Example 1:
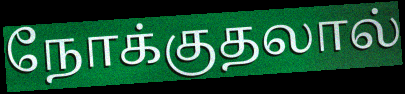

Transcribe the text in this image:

நோக்குதலால்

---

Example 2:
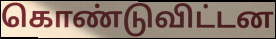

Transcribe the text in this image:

கொண்டுவிட்டன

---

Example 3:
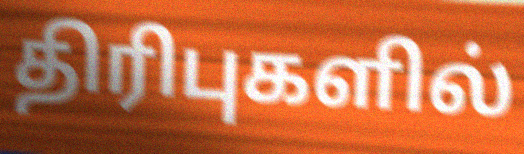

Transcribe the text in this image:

திரிபுகளில்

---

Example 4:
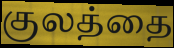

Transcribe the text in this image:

குலத்தை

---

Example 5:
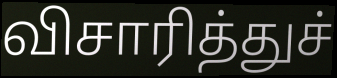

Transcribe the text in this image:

விசாரித்துச்